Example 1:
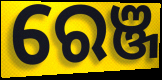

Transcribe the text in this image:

ରେଞ୍ଜ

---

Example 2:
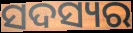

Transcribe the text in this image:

ସଦସ୍ୟର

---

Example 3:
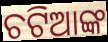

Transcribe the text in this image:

ଚଟିଆଙ୍କ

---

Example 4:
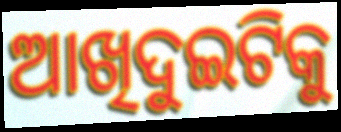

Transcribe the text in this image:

ଆଖିଦୁଇଟିକୁ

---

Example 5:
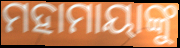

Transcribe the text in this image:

ମହାମାୟାଙ୍କୁ